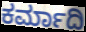
ಕರ್ಮಾದಿ